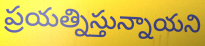
ప్రయత్నిస్తున్నాయని